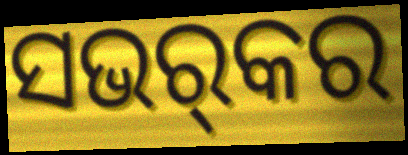
ସଭର୍‌କର